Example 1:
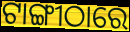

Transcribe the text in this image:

ଟାଙ୍ଗୀଠାରେ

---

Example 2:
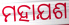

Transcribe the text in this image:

ମହାଯଶ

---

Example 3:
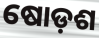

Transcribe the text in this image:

ଷୋଡ଼ଶ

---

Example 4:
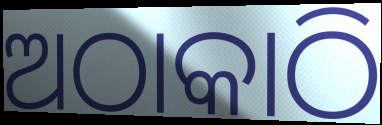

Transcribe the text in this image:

ଅଠାକାଠି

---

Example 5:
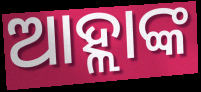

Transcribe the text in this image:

ଆହ୍ଲାଙ୍କ